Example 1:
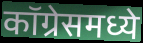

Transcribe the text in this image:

कॉग्रेसमध्ये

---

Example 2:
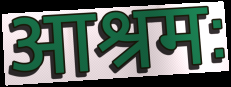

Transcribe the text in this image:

आश्रमः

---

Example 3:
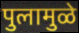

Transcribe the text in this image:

पुलामुळे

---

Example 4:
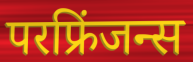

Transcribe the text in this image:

परफ्रिंजन्स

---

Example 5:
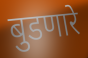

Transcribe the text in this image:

बुडणारे